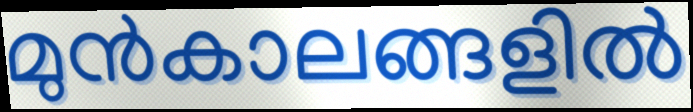
മുൻകാലങ്ങളിൽ